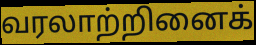
வரலாற்றினைக்